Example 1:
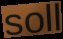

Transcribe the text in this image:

soll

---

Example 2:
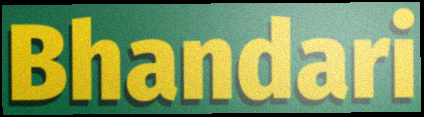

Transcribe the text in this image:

Bhandari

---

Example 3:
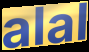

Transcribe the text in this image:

alal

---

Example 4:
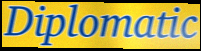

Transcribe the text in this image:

Diplomatic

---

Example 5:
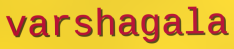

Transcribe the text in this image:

varshagala